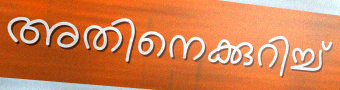
അതിനെക്കുറിച്ച്